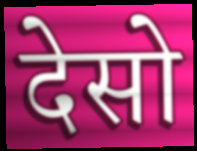
देसो